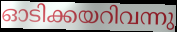
ഓടിക്കയറിവന്നു